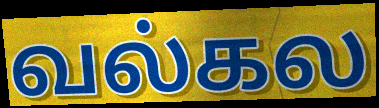
வல்கல